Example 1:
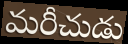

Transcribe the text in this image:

మరీచుడు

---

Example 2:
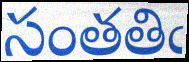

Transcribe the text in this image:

సంతతిఁ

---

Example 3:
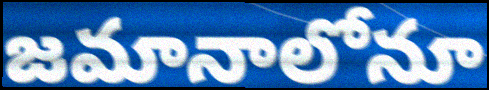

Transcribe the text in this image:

జమానాలోనూ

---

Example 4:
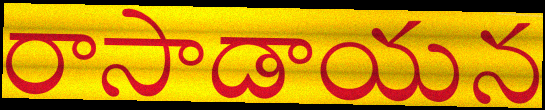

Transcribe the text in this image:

రాసాడాయన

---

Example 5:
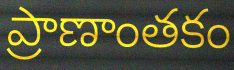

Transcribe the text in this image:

ప్రాణాంతకం